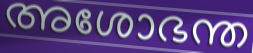
അശോഭന്ത